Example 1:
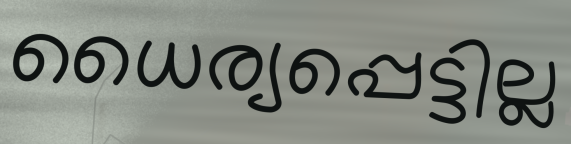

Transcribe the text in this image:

ധൈര്യപ്പെട്ടില്ല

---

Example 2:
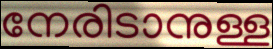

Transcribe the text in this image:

നേരിടാനുള്ള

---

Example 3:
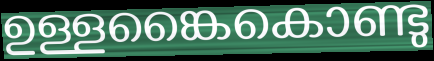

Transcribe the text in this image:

ഉള്ളങ്കൈകൊണ്ടു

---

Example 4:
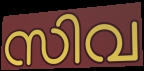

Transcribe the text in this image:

സിവ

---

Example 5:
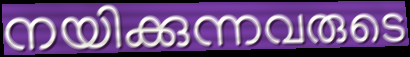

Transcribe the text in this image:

നയിക്കുന്നവരുടെ